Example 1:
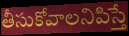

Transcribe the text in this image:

తీసుకోవాలనిపిస్తే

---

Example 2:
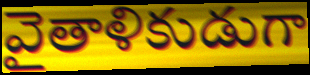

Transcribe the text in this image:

వైతాళికుడుగా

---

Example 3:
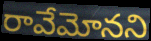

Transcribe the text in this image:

రావేమోనని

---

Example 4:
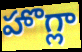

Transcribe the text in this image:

హొగ్లా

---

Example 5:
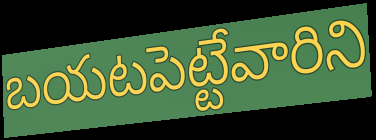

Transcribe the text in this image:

బయటపెట్టేవారిని